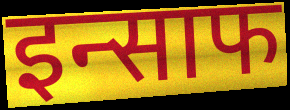
इन्साफ